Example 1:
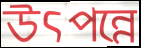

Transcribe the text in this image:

উৎপন্নে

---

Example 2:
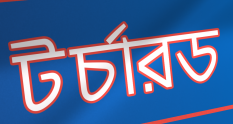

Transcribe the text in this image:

টর্চারড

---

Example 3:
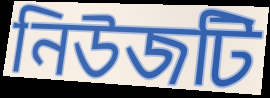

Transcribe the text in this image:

নিউজটি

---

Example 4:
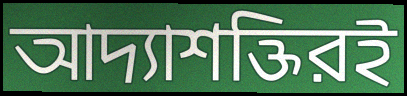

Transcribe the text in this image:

আদ্যাশক্তিরই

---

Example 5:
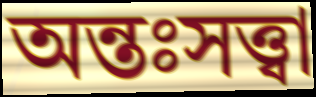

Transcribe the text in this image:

অন্তঃসত্ত্বা